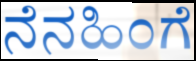
ನೆನಹಿಂಗೆ